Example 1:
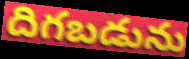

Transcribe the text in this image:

దిగబడును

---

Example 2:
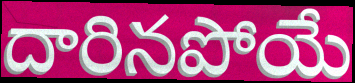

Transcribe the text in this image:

దారినపోయే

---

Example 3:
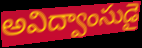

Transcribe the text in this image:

అవిద్వాంసుడై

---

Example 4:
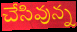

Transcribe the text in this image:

చేసివున్న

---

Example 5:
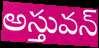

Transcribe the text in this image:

అస్తువన్